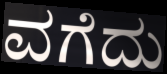
ವಗೆದು